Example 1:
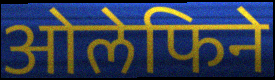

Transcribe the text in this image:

ओलेफिने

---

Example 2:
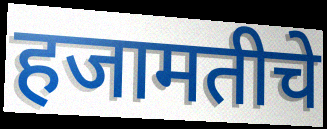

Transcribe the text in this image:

हजामतीचे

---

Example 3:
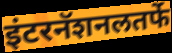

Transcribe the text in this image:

इंटरनॅशनलतर्फे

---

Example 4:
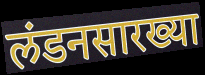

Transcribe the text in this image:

लंडनसारख्या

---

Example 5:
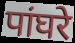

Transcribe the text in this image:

पांघरे